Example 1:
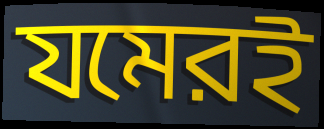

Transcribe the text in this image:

যমেরই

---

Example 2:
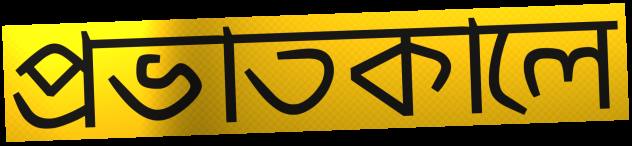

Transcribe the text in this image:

প্রভাতকালে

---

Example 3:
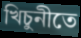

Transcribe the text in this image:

খিচুনীতে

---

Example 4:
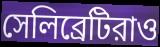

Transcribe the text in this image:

সেলিব্রেটিরাও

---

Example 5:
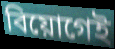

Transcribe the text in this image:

বিয়োগেই